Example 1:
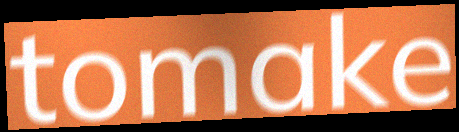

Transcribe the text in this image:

tomake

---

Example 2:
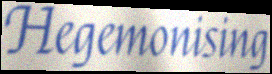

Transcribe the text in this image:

Hegemonising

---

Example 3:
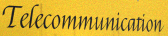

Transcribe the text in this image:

Telecommunication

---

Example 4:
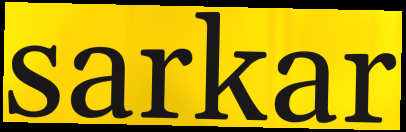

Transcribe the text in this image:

sarkar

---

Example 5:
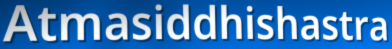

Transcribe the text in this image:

Atmasiddhishastra